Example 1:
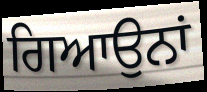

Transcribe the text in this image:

ਗਿਆਉਨਾਂ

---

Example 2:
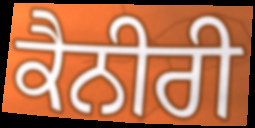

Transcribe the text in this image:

ਕੈਨੀਰੀ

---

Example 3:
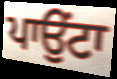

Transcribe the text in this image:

ਪਾਉੰਟਾ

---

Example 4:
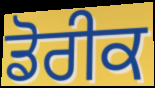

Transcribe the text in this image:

ਡੋਰੀਕ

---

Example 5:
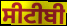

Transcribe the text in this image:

ਸੀਟੀਬੀ